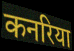
कनरिया